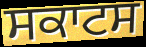
ਸਕਾਟਸ